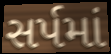
સર્પમાં